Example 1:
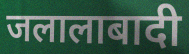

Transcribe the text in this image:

जलालाबादी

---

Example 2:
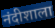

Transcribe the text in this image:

नंदीशाला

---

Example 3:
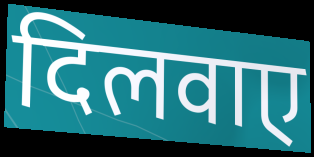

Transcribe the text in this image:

दिलवाए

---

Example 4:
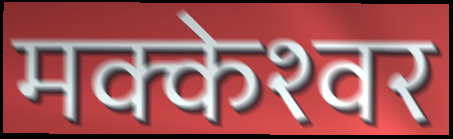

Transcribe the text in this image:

मक्केश्वर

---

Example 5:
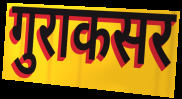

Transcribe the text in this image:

गुराकसर